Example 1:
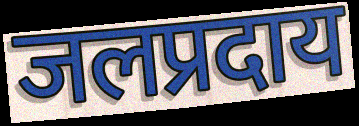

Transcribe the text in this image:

जलप्रदाय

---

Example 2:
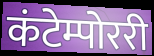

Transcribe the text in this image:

कंटेम्पोररी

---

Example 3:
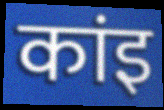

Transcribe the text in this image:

कांइ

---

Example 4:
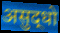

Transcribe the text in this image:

असुद्धो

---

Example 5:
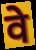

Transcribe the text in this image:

वे